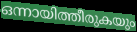
ഒന്നായിത്തീരുകയും